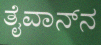
ತೈವಾನ್‌ನ